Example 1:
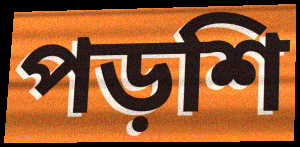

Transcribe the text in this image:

পড়শি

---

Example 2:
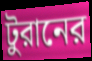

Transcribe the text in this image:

টুরানের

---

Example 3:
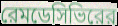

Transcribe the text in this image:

রেমডেসিভিরের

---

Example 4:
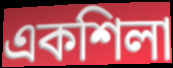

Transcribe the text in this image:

একশিলা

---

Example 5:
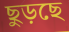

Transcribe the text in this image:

ছুড়ছে